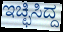
ಇಚ್ಛಿಸಿದ್ದ